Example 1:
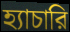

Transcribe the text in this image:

হ্যাচারি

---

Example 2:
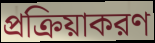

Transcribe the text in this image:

প্রক্রিয়াকরণ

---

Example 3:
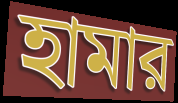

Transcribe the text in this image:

হামার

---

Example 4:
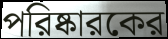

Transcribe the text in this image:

পরিষ্কারকের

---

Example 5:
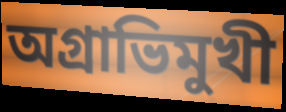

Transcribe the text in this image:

অগ্রাভিমুখী